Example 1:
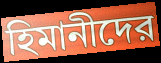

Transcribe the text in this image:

হিমানীদের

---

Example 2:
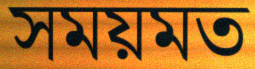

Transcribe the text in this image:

সময়মত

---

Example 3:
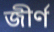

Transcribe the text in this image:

জীর্ণ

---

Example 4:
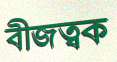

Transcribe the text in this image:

বীজত্বক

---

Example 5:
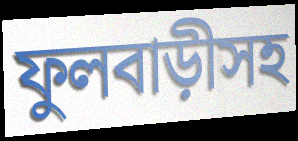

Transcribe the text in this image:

ফুলবাড়ীসহ